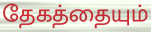
தேகத்தையும்